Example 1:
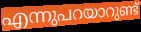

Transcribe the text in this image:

എന്നുപറയാറുണ്ട്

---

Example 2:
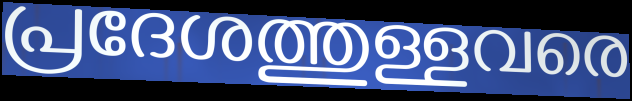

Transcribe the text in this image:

പ്രദേശത്തുള്ളവരെ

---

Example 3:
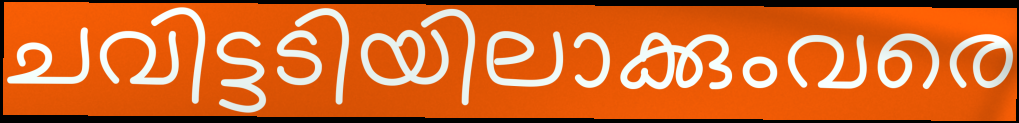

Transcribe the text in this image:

ചവിട്ടടിയിലാക്കുംവരെ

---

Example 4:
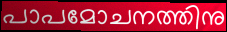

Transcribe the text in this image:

പാപമോചനത്തിനു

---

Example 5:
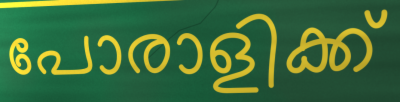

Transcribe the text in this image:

പോരാളിക്ക്